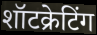
शॉटक्रेटिंग